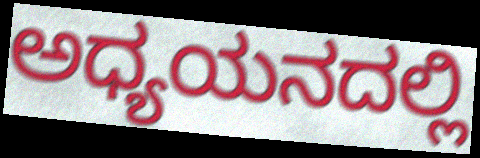
ಅಧ್ಯಯನದಲ್ಲಿ